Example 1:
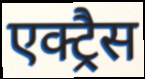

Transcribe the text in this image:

एक्ट्रैस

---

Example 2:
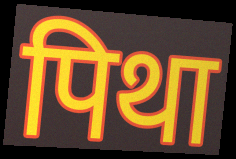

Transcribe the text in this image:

पिथा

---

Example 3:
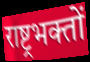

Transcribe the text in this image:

राष्ट्रभक्तों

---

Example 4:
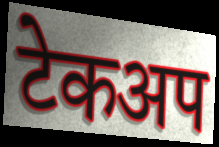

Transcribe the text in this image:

टेकअप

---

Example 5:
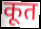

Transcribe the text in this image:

कूत